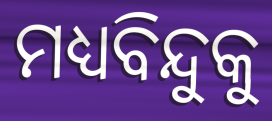
ମଧ୍ୟବିନ୍ଦୁକୁ